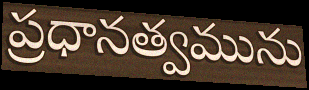
ప్రధానత్వమును